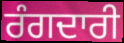
ਰੰਗਦਾਰੀ